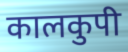
कालकुपी